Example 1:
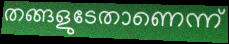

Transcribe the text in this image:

തങ്ങളുടേതാണെന്ന്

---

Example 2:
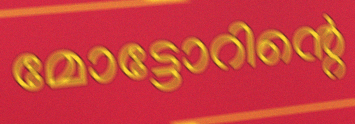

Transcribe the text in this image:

മോട്ടോറിന്റെ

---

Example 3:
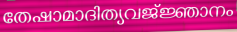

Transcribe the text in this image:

തേഷാമാദിത്യവജ്ജ്ഞാനം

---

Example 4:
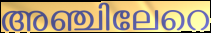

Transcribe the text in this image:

അഞ്ചിലേറെ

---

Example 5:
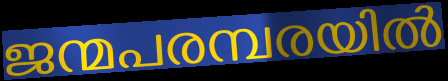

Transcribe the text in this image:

ജന്മപരമ്പരയിൽ